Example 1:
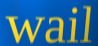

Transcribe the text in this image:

wail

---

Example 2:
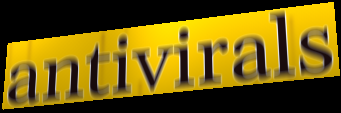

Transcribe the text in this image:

antivirals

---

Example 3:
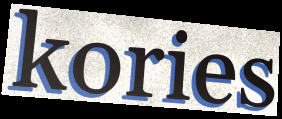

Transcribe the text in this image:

kories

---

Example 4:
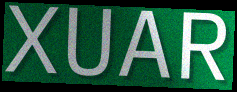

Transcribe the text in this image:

XUAR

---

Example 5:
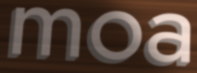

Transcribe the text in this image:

moa